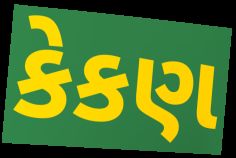
કેકણ